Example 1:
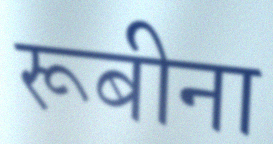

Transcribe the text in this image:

रूबीना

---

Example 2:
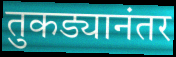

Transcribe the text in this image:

तुकड्यानंतर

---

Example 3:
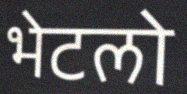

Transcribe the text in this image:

भेटलो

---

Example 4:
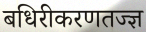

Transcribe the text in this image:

बधिरीकरणतज्ज्ञ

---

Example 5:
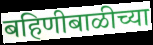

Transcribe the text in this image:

बहिणीबाळीच्या